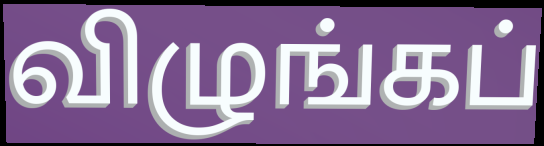
விழுங்கப்